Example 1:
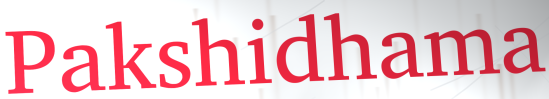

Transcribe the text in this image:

Pakshidhama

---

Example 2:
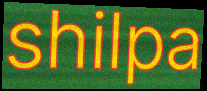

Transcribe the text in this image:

shilpa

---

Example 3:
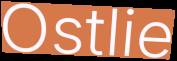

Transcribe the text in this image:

Ostlie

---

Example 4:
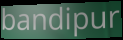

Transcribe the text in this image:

bandipur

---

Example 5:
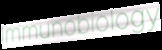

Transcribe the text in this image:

Immunobiology